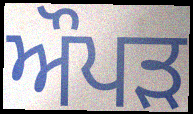
ਔਪੜ